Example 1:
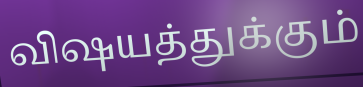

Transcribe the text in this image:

விஷயத்துக்கும்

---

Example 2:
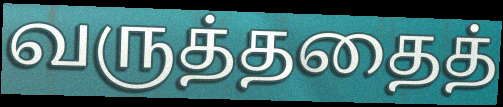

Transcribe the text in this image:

வருத்ததைத்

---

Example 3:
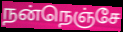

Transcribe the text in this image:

நன்நெஞ்சே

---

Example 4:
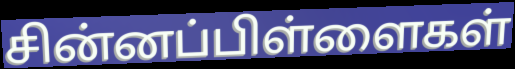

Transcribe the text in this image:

சின்னப்பிள்ளைகள்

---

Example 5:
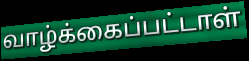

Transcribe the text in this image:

வாழ்க்கைப்பட்டாள்